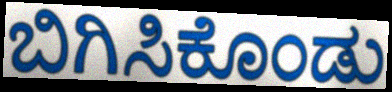
ಬಿಗಿಸಿಕೊಂಡು